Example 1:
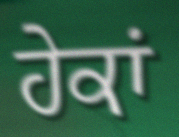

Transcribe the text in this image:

ਹੇਕਾਂ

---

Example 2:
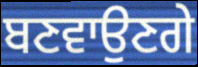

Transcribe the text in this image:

ਬਣਵਾਉਣਗੇ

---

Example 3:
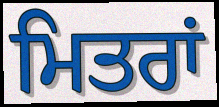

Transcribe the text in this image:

ਮਿਤਰਾਂ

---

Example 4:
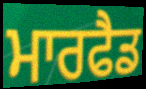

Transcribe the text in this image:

ਮਾਰਫੈਡ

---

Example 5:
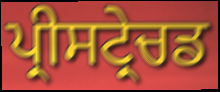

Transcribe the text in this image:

ਪ੍ਰੀਸਟ੍ਰੇਚਡ